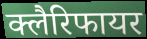
क्लैरिफायर